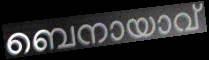
ബെനായാവ്